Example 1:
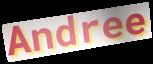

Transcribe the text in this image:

Andree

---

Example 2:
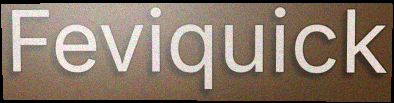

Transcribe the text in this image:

Feviquick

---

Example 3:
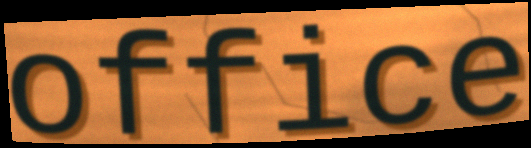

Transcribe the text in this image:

office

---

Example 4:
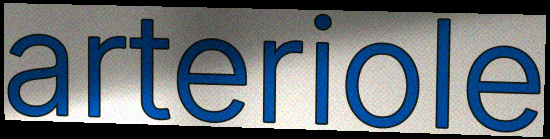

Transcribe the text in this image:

arteriole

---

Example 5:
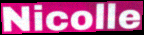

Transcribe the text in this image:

Nicolle